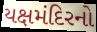
યક્ષમંદિરનો